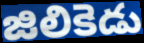
జిలికెడు